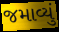
જમાવ્યું